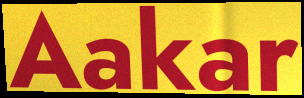
Aakar